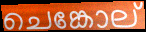
ചെങ്കോല്